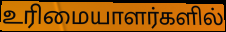
உரிமையாளர்களில்